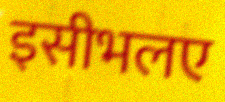
इसीभलए